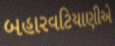
બહારવટિયાણીએ